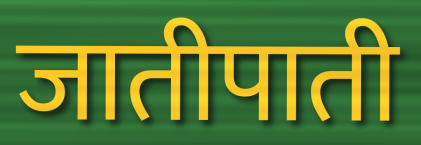
जातीपाती